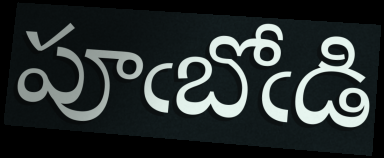
పూఁబోఁడి